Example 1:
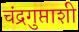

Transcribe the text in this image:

चंद्रगुप्ताशी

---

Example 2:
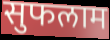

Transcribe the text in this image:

सुफलाम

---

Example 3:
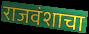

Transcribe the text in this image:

राजवंशाचा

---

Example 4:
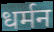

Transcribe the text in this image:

धर्मन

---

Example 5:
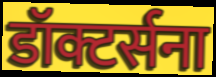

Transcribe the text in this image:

डॉक्टर्सना